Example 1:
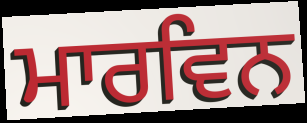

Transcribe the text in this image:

ਮਾਰਵਿਨ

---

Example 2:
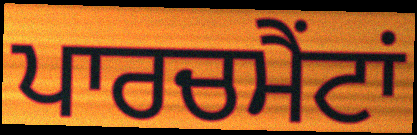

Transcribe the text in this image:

ਪਾਰਚਮੈਂਟਾਂ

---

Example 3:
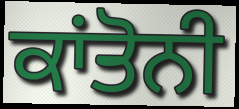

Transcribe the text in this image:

ਕਾਂਤੋਨੀ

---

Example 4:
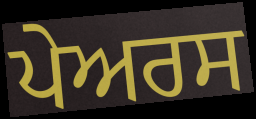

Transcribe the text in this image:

ਪੇਅਰਸ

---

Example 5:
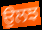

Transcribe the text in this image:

ਉਲਝ